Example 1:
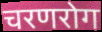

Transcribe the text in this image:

चरणरोग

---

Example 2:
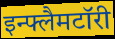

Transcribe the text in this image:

इन्फ्लैमटॉरी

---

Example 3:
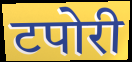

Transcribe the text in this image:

टपोरी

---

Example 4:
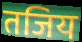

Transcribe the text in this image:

तजिय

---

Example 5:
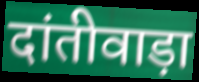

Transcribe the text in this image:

दांतीवाड़ा